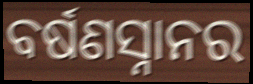
ବର୍ଷଣସ୍ନାନର